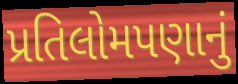
પ્રતિલોમપણાનું